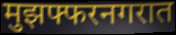
मुझफ्फरनगरात